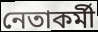
নেতাকর্মী